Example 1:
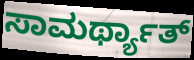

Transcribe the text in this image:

ಸಾಮರ್ಥ್ಯಾತ್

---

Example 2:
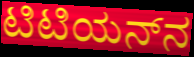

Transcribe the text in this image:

ಟಿಟಿಯನ್‌ನ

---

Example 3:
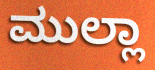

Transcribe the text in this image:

ಮುಲ್ಲಾ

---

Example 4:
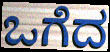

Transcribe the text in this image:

ಒಗೆದ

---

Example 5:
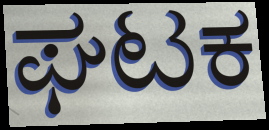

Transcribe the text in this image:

ಘಟಕ